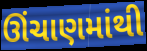
ઊંચાણમાંથી